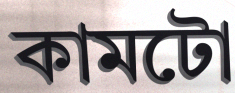
কামটো